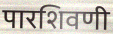
पारशिवणी